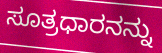
ಸೂತ್ರಧಾರನನ್ನು